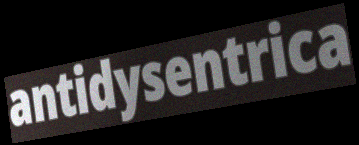
antidysentrica